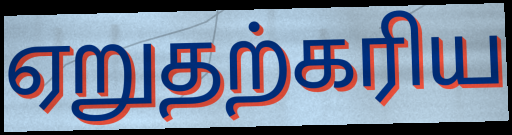
ஏறுதற்கரிய